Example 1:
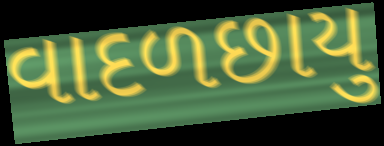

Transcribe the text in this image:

વાદળછાયુ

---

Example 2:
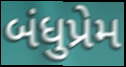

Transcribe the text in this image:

બંધુપ્રેમ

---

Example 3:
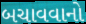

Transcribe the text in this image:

બચાવવાનો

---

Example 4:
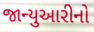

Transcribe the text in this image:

જાન્યુઆરીનો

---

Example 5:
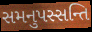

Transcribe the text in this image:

સમનુપસ્સન્તિ